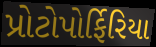
પ્રોટોપોર્ફિરિયા